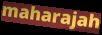
maharajah